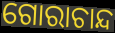
ଗୋରାଚାନ୍ଦ